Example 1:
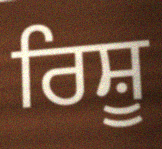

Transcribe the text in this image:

ਰਿਸ਼ੂ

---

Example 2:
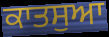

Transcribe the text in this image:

ਕਾਤਸੁਆ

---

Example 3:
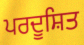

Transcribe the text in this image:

ਪਰਦੂਸ਼ਿਤ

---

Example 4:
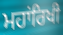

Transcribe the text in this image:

ਮਹਾਂਰਿਖੀ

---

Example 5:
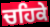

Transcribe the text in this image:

ਚਹਿਕੇ